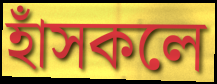
হাঁসকলে